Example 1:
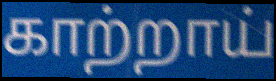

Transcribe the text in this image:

காற்றாய்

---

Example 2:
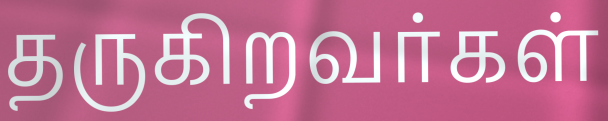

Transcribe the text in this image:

தருகிறவர்கள்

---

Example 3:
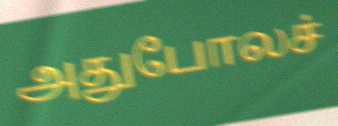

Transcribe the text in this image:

அதுபோலச்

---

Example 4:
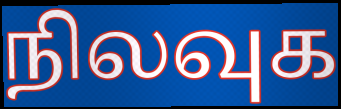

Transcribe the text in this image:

நிலவுக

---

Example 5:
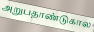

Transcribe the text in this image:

அறுபதாண்டுகால